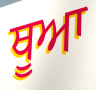
ਥੂਆ